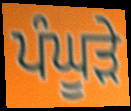
ਪੰਘੂੜੇ